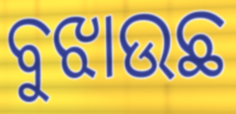
ବୁଝାଉଛ